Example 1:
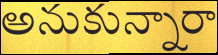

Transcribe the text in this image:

అనుకున్నారా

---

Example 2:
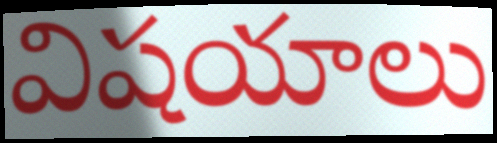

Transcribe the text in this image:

విషయాలు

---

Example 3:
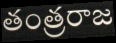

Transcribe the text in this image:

తంత్రరాజ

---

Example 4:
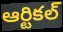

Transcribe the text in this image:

ఆర్టికల్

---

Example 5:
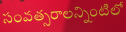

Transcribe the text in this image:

సంవత్సరాలన్నింటిలో